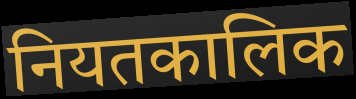
नियतकालिक